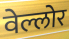
वेल्लोर